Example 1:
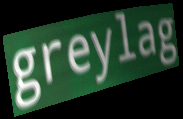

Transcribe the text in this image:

greylag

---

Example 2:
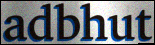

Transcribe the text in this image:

adbhut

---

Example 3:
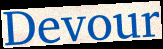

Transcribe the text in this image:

Devour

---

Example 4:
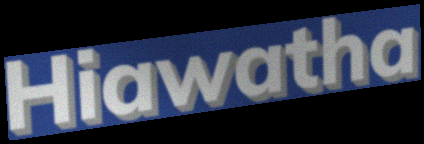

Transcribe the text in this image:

Hiawatha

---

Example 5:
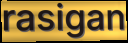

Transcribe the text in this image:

rasigan